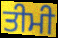
ਤੀਮੀ